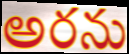
అరను